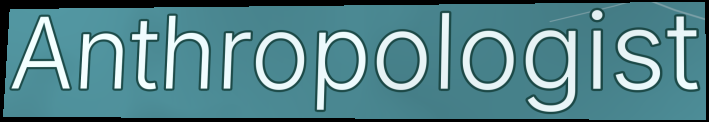
Anthropologist